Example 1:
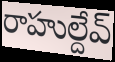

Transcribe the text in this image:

రాహుల్దేవ్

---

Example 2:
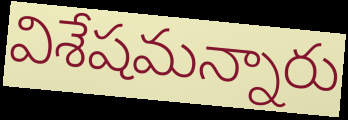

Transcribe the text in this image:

విశేషమన్నారు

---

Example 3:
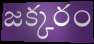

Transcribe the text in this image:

జక్కరం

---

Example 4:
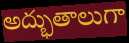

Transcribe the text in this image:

అద్భుతాలుగా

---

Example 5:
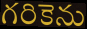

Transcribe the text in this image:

గరికెను